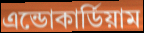
এন্ডোকার্ডিয়াম